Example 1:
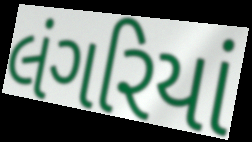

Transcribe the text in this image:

લંગરિયાં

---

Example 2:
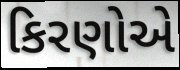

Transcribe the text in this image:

કિરણોએ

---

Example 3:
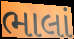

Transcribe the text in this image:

ભાલાં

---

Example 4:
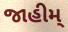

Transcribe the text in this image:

જાહીમ્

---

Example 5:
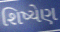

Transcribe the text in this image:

શિષ્યેણ